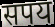
सपय